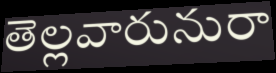
తెల్లవారునురా